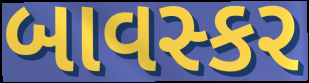
બાવસ્કર